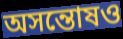
অসন্তোষও